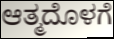
ಆತ್ಮದೊಳಗೆ